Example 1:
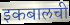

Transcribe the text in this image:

इकबालची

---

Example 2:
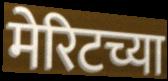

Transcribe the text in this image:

मेरिटच्या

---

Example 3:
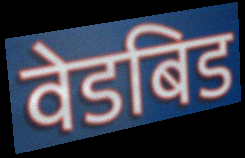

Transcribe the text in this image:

वेडबिड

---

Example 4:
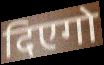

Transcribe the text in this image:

दिएगो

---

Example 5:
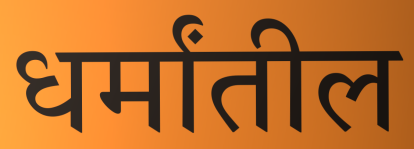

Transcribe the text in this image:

धर्मांतील